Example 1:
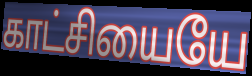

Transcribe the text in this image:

காட்சியையே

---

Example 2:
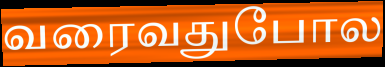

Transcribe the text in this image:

வரைவதுபோல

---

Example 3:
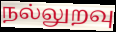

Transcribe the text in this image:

நல்லுறவு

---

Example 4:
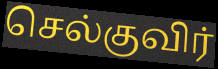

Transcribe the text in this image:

செல்குவிர்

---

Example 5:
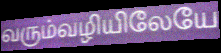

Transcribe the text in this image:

வரும்வழியிலேயே